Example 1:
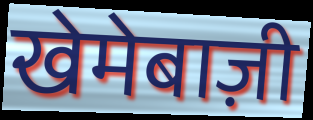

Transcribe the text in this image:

खेमेबाज़ी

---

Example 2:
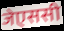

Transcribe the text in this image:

जेएससी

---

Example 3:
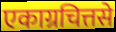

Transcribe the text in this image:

एकाग्रचित्तसे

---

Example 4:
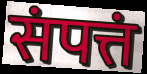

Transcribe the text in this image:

संपत्तं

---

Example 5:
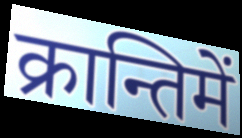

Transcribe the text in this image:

क्रान्तिमें